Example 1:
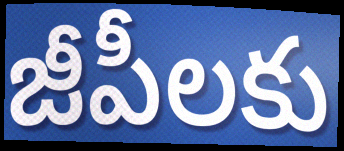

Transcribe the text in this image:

జీపీలకు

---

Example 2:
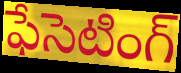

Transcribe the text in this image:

ఫేసెటింగ్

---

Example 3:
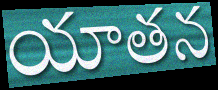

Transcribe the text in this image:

యాతన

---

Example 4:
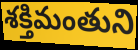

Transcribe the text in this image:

శక్తిమంతుని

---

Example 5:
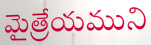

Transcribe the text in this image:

మైత్రేయముని